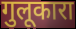
गुलूकारा